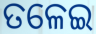
ତଳେଇ